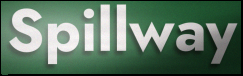
Spillway